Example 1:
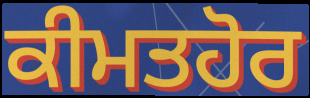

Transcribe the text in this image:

ਕੀਮਤਹੋਰ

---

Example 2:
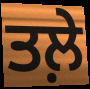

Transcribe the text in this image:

ਤਲ਼ੇ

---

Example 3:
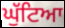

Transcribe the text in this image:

ਘੁੱਟਿਆ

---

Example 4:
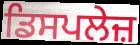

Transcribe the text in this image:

ਡਿਸਪਲੇਜ਼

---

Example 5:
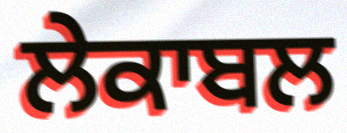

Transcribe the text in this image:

ਲੇਕਾਬਲ